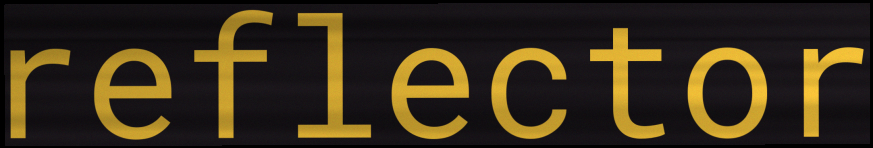
reflector